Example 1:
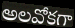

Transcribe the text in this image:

అలవోకగా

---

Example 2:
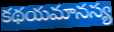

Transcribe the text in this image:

కథయమానస్య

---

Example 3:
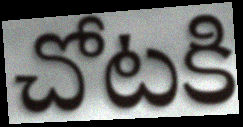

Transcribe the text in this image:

చోటకి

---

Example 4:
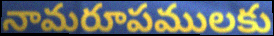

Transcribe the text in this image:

నామరూపములకు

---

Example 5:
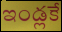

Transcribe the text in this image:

ఇండ్లకే